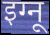
इग्‍नू